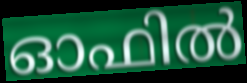
ഓഫിൽ